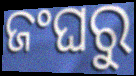
ଜଂଘରୁ